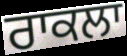
ਰਾਕਲਾ